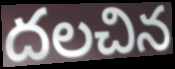
దలచిన